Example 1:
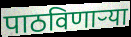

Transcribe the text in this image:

पाठविणाऱ्या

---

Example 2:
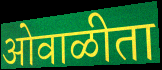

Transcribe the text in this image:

ओवाळीता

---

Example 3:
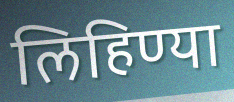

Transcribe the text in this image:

लिहिण्या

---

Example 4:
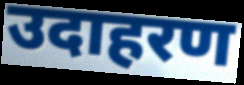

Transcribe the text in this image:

उदाहरण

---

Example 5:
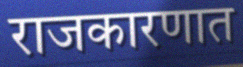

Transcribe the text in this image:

राजकारणात